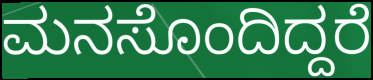
ಮನಸೊಂದಿದ್ದರೆ